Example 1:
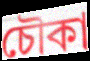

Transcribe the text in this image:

চৌকা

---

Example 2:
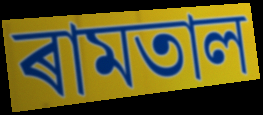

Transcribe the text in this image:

ৰামতাল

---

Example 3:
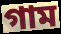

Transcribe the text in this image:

গাম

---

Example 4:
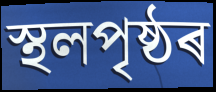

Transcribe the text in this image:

স্থলপৃষ্ঠৰ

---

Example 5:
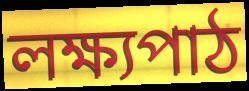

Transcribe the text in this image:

লক্ষ্যপাঠ